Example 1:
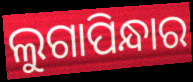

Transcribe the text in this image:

ଲୁଗାପିନ୍ଧାର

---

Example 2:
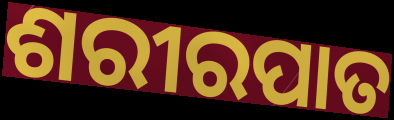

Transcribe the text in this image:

ଶରୀରପାତ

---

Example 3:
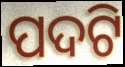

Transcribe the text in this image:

ପଦଟି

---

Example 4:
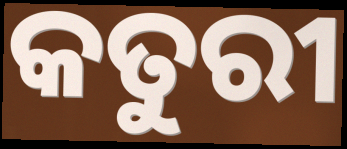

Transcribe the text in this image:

କତୁରୀ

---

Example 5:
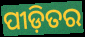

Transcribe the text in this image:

ପୀଡ଼ିତର